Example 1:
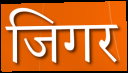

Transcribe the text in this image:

जिगर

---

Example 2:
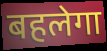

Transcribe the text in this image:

बहलेगा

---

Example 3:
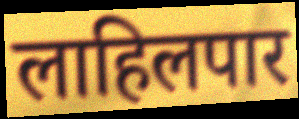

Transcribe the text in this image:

लाहिलपार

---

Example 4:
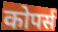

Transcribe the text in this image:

कोपर्स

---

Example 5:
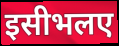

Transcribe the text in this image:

इसीभलए